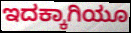
ಇದಕ್ಕಾಗಿಯೂ